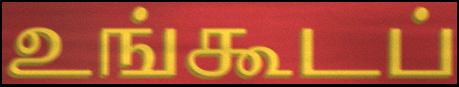
உங்கூடப்